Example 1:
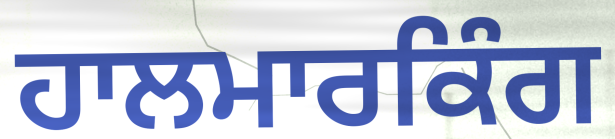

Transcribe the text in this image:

ਹਾਲਮਾਰਕਿੰਗ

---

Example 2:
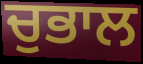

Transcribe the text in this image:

ਚੁਭਾਲ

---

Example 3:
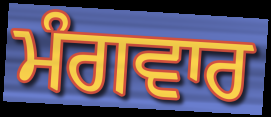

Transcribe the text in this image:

ਮੰਗਵਾਰ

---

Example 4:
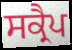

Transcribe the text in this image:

ਸਕ੍ਰੈਪ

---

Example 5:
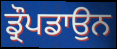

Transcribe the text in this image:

ਡ੍ਰੌਪਡਾਉਨ